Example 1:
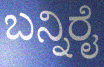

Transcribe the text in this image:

ಬನ್ನಿರೈ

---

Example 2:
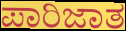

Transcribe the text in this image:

ಪಾರಿಜಾತ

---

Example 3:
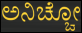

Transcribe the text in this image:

ಅನಿಚ್ಚೋ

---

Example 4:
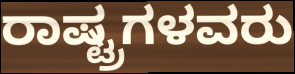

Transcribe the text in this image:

ರಾಷ್ಟ್ರಗಳವರು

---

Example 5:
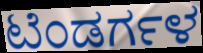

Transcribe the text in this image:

ಟೆಂಡರ್ಗಳ